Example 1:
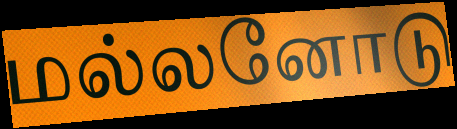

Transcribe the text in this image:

மல்லனோடு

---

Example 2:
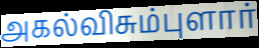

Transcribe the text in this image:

அகல்விசும்புளார்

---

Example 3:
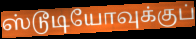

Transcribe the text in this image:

ஸ்டூடியோவுக்குப்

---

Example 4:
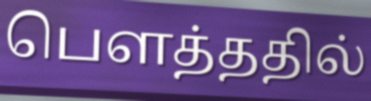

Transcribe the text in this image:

பௌத்ததில்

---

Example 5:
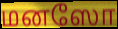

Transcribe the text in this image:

மனஸோ